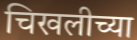
चिखलीच्या